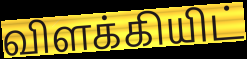
விளக்கியிட்